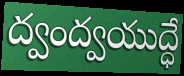
ద్వంద్వయుద్ధే